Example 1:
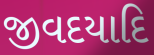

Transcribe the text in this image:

જીવદયાદિ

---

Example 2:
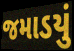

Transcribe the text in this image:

જમાડયું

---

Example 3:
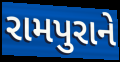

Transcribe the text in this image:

રામપુરાને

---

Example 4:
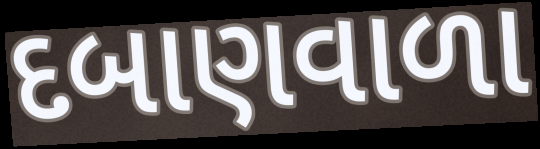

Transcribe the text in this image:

દબાણવાળા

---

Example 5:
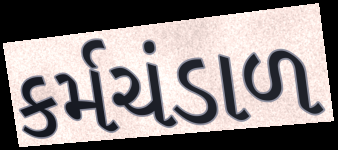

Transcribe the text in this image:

કર્મચંડાળ